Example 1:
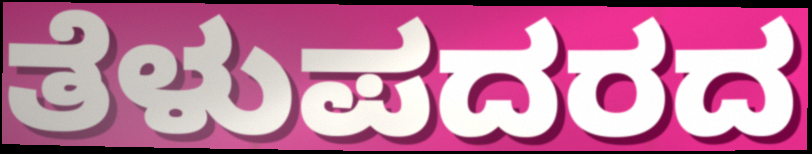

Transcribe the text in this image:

ತೆಳುಪದರದ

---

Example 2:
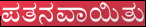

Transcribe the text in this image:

ಪತನವಾಯಿತು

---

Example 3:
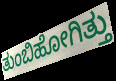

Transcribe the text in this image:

ತುಂಬಿಹೋಗಿತ್ತು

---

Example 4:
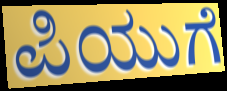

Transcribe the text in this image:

ಪಿಯುಗೆ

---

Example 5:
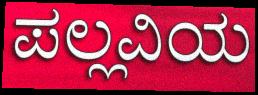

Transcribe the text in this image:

ಪಲ್ಲವಿಯ